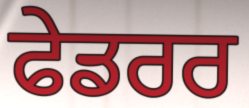
ਫੇਡਰਰ